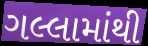
ગલ્લામાંથી